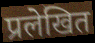
प्रलेखित